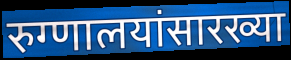
रुग्णालयांसारख्या